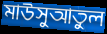
মাউসুআতুল